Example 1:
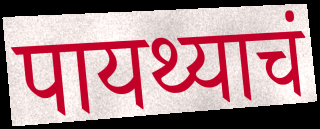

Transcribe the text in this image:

पायथ्याचं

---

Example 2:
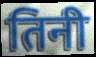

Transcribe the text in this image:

तिनी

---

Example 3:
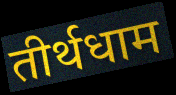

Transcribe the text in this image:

तीर्थधाम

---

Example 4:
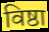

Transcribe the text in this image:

विष्ठा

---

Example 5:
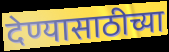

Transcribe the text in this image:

देण्यासाठीच्या